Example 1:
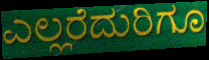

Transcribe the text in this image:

ಎಲ್ಲರೆದುರಿಗೂ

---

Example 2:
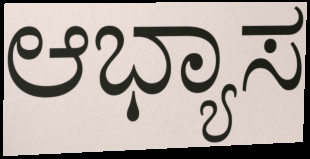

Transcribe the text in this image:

ಆಭ್ಯಾಸ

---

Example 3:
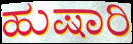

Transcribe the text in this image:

ಹುಷಾರಿ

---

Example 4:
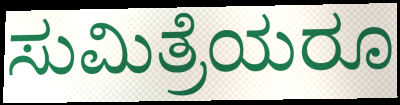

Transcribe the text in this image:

ಸುಮಿತ್ರೆಯರೂ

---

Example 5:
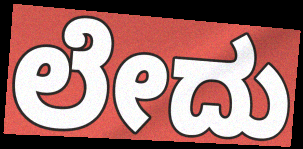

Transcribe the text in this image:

ಲೇದು